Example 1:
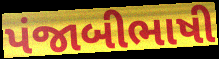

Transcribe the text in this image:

પંજાબીભાષી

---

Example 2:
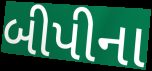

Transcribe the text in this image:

બીપીના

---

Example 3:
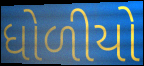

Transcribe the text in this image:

ધોળીયો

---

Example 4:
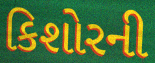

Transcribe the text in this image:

કિશોરની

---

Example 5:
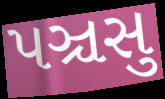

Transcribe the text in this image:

પઞ્ચસુ